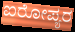
ಐರೋಪ್ಯರ